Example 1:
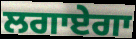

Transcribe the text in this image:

ਲਗਾਏਗਾ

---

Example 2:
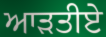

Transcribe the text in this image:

ਆੜਤੀਏ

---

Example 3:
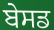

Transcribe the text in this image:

ਬੇਸਡ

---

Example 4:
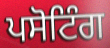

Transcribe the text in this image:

ਪਸੋਟਿੰਗ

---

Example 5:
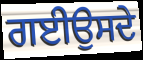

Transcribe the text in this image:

ਗਈਉਸਦੇ